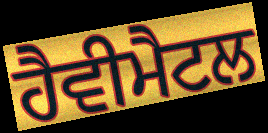
ਹੈਵੀਮੈਟਲ